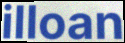
illoan